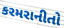
કરમરાનીતો